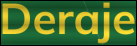
Deraje